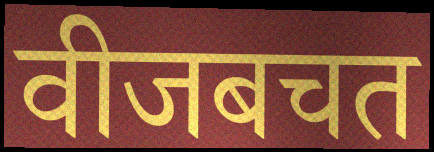
वीजबचत